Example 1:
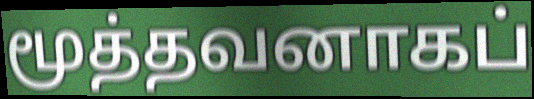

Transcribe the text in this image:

மூத்தவனாகப்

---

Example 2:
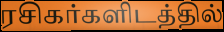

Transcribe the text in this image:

ரசிகர்களிடத்தில்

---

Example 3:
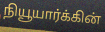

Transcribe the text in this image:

நியூயார்க்கின்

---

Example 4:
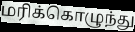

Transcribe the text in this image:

மரிக்கொழுந்து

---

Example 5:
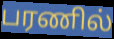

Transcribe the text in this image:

பரணில்